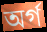
অৰ্গ